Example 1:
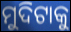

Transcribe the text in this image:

ମୁଦିଟାକୁ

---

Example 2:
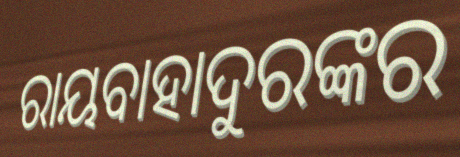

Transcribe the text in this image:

ରାୟବାହାଦୁରଙ୍କର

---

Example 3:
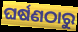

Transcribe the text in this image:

ଘର୍ଷଣଠାରୁ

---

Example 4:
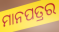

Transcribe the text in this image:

ମାନପତ୍ରର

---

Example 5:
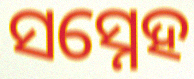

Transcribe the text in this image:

ସସ୍ନେହ